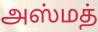
அஸ்மத்